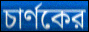
চার্ণকের